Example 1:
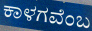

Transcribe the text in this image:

ಕಾಳಗವೆಂಬ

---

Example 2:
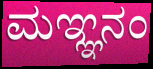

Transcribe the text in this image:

ಮಞ್ಞನಂ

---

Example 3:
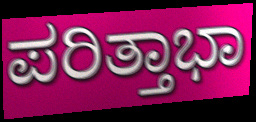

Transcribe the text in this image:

ಪರಿತ್ತಾಭಾ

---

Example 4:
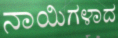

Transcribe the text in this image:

ನಾಯಿಗಳಾದ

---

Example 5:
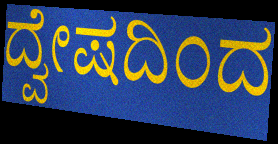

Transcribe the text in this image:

ದ್ವೇಷದಿಂದ